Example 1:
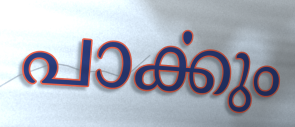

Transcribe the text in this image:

പാൎക്കും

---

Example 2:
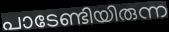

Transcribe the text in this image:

പാടേണ്ടിയിരുന്ന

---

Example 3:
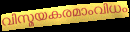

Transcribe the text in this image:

വിസ്മയകരമാംവിധം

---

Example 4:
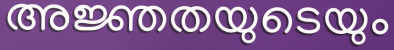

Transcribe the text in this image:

അജ്ഞതയുടെയും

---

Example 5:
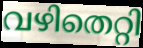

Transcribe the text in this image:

വഴിതെറ്റി